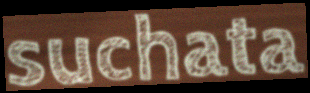
suchata